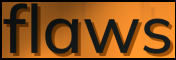
flaws